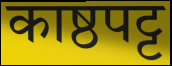
काष्ठपट्ट